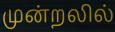
முன்றலில்